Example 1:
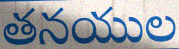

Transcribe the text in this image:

తనయుల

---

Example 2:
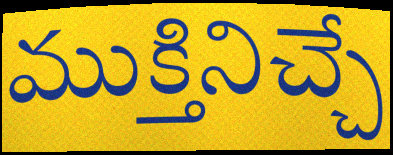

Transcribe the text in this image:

ముక్తినిచ్చే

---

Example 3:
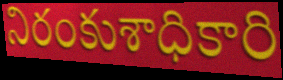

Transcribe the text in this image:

నిరంకుశాధికారి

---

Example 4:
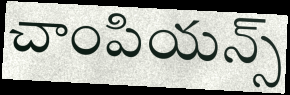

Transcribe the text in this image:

చాంపియన్స్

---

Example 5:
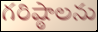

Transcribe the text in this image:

గరిష్ఠాలను